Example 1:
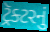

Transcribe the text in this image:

ટ્રૅક્ટરનું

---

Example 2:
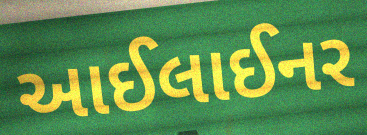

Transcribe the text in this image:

આઈલાઈનર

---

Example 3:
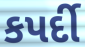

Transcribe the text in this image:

કપર્દી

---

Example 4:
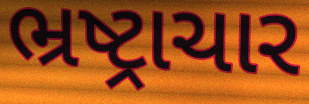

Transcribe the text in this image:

ભ્રષ્ટ્રાચાર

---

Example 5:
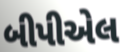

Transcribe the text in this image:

બીપીએલ